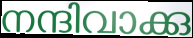
നന്ദിവാക്കു